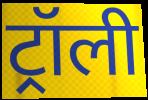
ट्रॉली